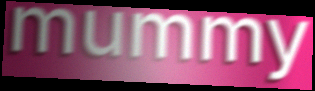
mummy